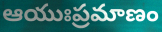
ఆయుఃప్రమాణం